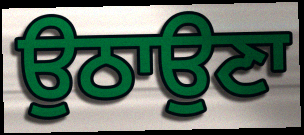
ਉਠਾਉਣਾ